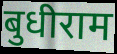
बुधीराम